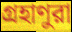
গ্রহাণুরা